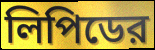
লিপিডের